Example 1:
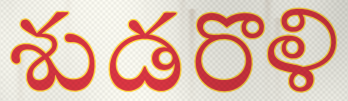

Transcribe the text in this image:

శుడరొళి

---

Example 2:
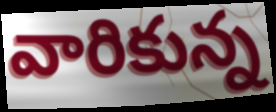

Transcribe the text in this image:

వారికున్న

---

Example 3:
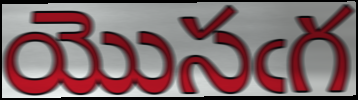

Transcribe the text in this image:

యొసఁగ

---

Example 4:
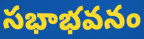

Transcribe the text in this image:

సభాభవనం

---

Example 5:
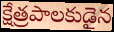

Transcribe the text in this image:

క్షేత్రపాలకుడైన